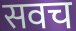
सवच